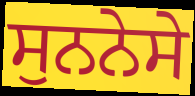
ਸੁਨਨੇਸੇ